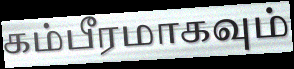
கம்பீரமாகவும்